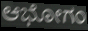
ಆಭೋಗಂ